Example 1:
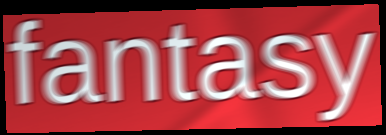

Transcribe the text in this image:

fantasy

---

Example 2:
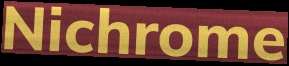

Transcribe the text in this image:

Nichrome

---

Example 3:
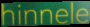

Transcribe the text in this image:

hinnele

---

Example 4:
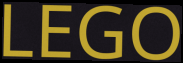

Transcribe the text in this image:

LEGO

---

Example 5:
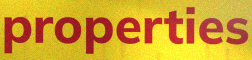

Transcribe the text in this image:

properties